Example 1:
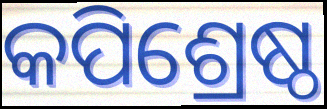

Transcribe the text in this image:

କପିଶ୍ରେଷ୍ଠ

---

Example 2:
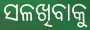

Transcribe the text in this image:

ସଳଖିବାକୁ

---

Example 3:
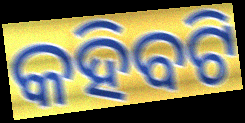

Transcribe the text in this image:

କହିବଟି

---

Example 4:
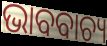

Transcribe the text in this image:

ଭାବବାଚ୍ୟ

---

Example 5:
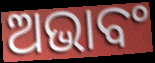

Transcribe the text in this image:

ଅଭାବଂ